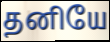
தனியே